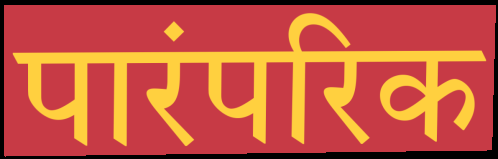
पारंपरिक